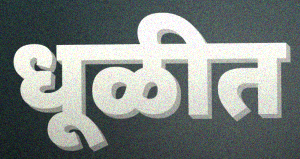
धूळीत